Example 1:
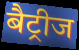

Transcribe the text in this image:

बैट्रीज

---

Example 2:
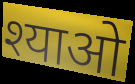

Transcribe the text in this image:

श्याओ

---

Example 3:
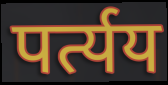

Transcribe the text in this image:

पर्त्यय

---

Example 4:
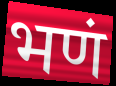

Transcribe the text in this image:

भणं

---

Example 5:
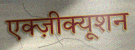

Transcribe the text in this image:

एक्ज़ीक्यूशन